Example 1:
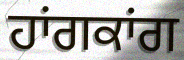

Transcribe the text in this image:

ਹਾਂਗਕਾਂਗ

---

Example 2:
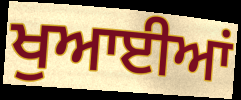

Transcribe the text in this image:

ਖੁਆਈਆਂ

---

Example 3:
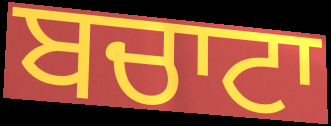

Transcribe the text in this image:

ਬਚਾਟਾ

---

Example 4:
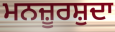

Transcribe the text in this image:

ਮਨਜ਼ੂਰਸ਼ੁਦਾ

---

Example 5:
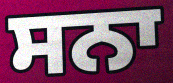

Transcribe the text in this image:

ਸਨਾ